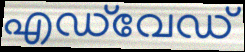
എഡ്‌വേഡ്